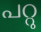
പറ്റു